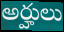
అర్హులు